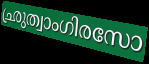
ഛ്രുത്വാംഗിരസോ